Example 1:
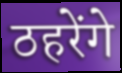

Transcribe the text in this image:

ठहरेंगे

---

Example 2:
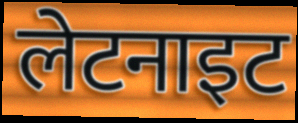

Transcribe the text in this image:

लेटनाइट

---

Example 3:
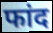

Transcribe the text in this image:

फांद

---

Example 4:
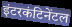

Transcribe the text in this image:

इंटरकंटिनेंटल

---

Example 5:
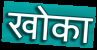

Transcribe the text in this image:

खोका